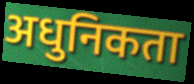
अधुनिकता